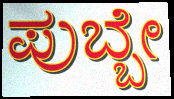
ಪುಬ್ಬೇ